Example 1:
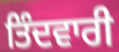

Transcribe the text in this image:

ਤਿੰਦਵਾਰੀ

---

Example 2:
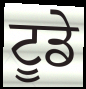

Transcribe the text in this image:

ਟੂਡੇ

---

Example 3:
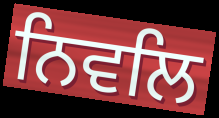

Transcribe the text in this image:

ਨਿਵਲਿ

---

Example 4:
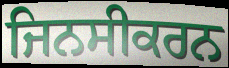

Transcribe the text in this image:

ਜਿਨਸੀਕਰਨ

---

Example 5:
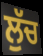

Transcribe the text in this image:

ਲੁੱਚ